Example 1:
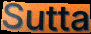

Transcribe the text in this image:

Sutta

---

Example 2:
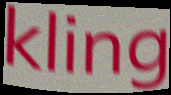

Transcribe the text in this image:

kling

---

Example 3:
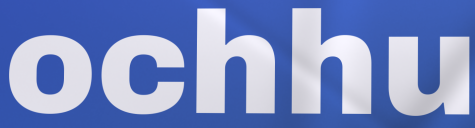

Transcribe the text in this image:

ochhu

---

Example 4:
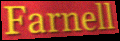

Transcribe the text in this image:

Farnell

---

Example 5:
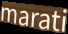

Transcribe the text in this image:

marati